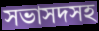
সভাসদসহ